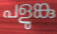
പളുങ്കു